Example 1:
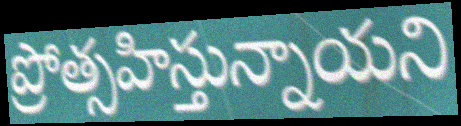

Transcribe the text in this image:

ప్రోత్సహిస్తున్నాయని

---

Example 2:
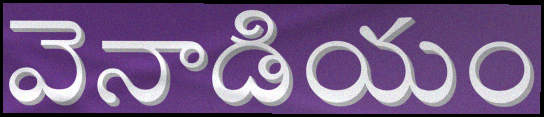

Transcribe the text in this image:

వెనాడియం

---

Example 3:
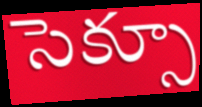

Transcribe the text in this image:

సెక్సూ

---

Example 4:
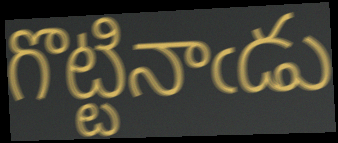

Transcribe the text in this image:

గొట్టినాఁడు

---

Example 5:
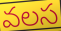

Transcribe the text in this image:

వలస